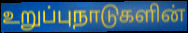
உறுப்புநாடுகளின்